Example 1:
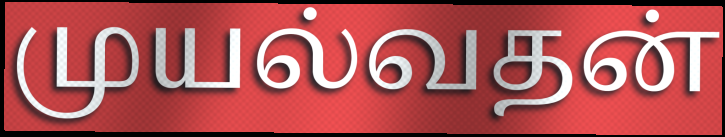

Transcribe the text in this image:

முயல்வதன்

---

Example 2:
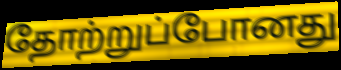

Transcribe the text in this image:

தோற்றுப்போனது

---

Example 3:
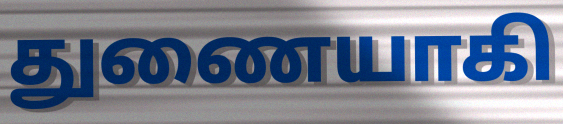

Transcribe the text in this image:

துணையாகி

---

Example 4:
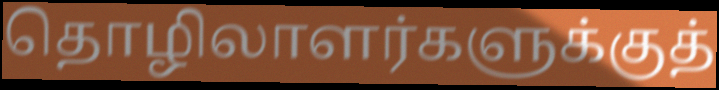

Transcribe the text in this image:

தொழிலாளர்களுக்குத்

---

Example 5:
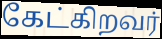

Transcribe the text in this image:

கேட்கிறவர்